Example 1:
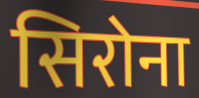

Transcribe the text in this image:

सिरोना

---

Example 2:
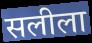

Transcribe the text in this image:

सलीला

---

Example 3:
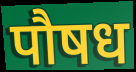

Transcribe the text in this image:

पौषध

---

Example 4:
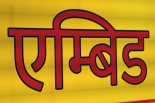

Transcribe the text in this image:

एम्बिड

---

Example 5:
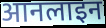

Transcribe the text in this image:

आनलाइन